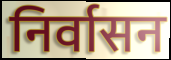
निर्वासन